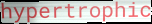
hypertrophic